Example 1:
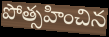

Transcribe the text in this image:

పోత్సహించిన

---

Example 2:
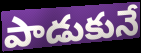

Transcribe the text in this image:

పాడుకునే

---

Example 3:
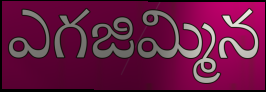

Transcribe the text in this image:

ఎగజిమ్మిన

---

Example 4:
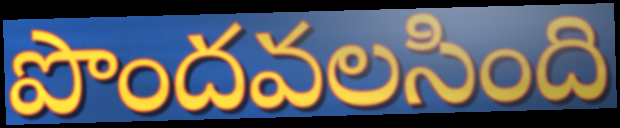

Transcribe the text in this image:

పొందవలసింది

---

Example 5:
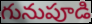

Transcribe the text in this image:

గునుపూడి